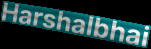
Harshalbhai